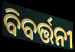
ବିବର୍ତ୍ତନୀ